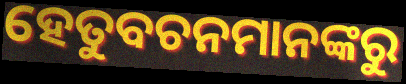
ହେତୁବଚନମାନଙ୍କରୁ